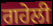
ਗਹੇਲੀ